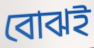
বোঝই